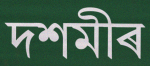
দশমীৰ